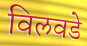
विलवडे